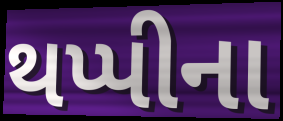
થપ્પીના